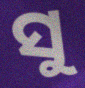
ସୁ